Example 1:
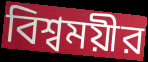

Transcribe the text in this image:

বিশ্বময়ীর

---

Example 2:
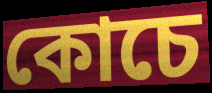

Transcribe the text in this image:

কোচে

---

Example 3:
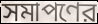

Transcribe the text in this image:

সমাপণের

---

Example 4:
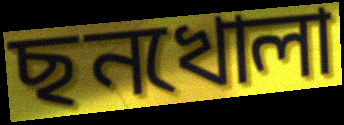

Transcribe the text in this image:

ছনখোলা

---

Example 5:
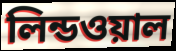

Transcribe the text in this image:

লিন্ডওয়াল